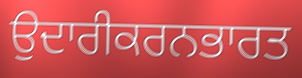
ਉਦਾਰੀਕਰਨਭਾਰਤ